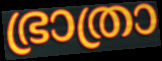
ഭ്രാത്രാ